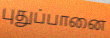
புதுப்பானை